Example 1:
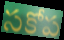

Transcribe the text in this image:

సకోప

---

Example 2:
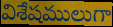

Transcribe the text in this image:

విశేషములుగా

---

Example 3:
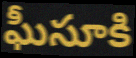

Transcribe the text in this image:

ఘీసూకి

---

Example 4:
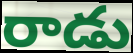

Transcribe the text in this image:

రాడు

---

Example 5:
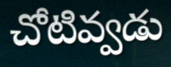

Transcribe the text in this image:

చోటివ్వడు